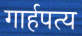
गार्हपत्य